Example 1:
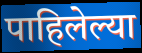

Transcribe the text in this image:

पाहिलेल्या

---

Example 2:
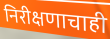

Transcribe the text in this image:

निरीक्षणाचाही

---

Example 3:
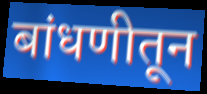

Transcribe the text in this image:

बांधणीतून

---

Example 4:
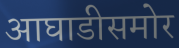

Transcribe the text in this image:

आघाडीसमोर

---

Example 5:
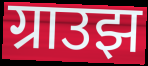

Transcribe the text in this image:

ग्राउझ